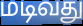
மடிவது